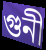
গুনী